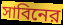
সাবিনের